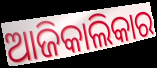
ଆଜିକାଲିକାର